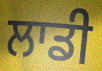
ਲਾਡੀ